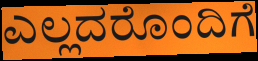
ಎಲ್ಲದರೊಂದಿಗೆ